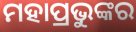
ମହାପ୍ରଭୁଙ୍କର